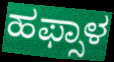
ಹಫ್ಸಾಳ